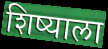
शिष्याला